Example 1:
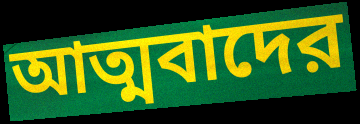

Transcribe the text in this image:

আত্মবাদের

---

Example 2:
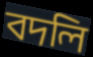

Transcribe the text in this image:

বদলি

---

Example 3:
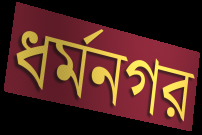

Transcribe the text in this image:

ধর্মনগর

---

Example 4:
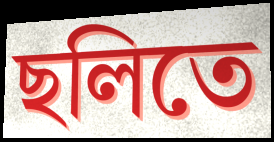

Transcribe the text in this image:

ছলিতে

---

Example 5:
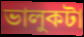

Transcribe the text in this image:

ভালুকটা